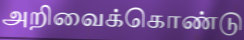
அறிவைக்கொண்டு